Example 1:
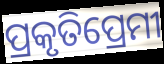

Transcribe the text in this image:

ପ୍ରକୃତିପ୍ରେମୀ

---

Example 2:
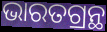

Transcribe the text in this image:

ଭାରତଗ୍ରନ୍ଥ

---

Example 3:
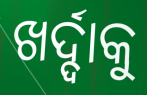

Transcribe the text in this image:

ଖର୍ଦ୍ଦାକୁ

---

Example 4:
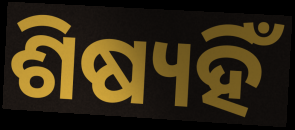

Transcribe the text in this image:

ଶିଷ୍ୟହିଁ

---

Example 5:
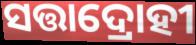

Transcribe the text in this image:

ସତ୍ତାଦ୍ରୋହୀ